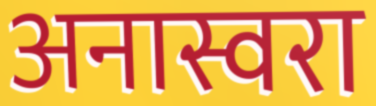
अनास्वरा